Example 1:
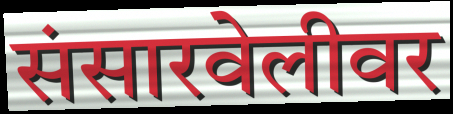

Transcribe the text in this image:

संसारवेलीवर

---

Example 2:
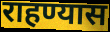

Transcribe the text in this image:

राहण्यास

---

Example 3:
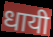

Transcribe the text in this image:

धायी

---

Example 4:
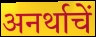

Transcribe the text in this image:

अनर्थाचें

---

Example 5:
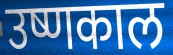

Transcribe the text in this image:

उष्णकाल